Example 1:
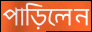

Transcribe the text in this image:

পাড়িলেন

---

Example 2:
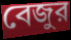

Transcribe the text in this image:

বেজুর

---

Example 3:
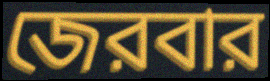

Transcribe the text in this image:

জেরবার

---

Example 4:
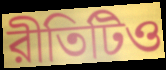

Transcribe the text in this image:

রীতিটিও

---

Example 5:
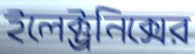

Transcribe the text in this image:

ইলেক্ট্রনিক্সের